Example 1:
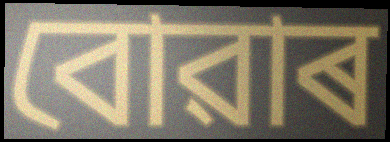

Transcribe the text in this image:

বোৱাৰ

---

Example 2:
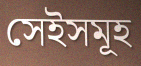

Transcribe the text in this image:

সেইসমূহ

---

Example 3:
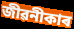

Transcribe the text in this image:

জীৱনীকাৰ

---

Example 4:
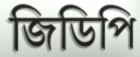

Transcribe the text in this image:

জিডিপি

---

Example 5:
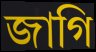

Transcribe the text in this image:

জাগি